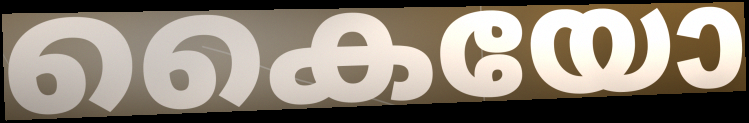
കൈയോ